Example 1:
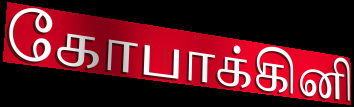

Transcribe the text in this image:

கோபாக்கினி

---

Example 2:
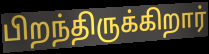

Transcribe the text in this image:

பிறந்திருக்கிறார்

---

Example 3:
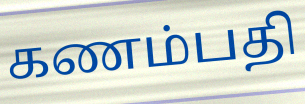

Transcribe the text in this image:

கணம்பதி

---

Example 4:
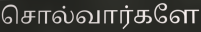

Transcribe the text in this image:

சொல்வார்களே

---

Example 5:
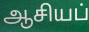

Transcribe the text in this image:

ஆசியப்